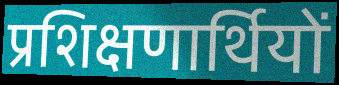
प्रशिक्षणार्थियों